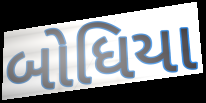
બોધિયા